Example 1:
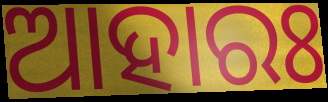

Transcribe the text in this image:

ଆହାରଃ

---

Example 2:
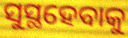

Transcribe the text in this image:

ସୁସ୍ଥହେବାକୁ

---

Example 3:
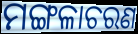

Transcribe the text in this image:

ମଙ୍ଗଳାଚରଣ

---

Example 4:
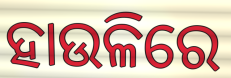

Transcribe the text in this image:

ହାଉଳିରେ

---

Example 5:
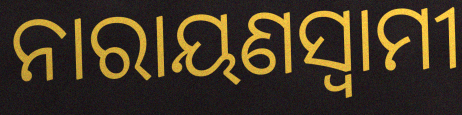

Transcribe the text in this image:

ନାରାୟଣସ୍ଵାମୀ